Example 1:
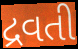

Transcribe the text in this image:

દ્રવતી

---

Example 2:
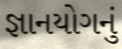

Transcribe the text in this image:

જ્ઞાનયોગનું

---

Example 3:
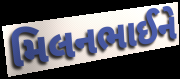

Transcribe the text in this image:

મિલનભાઈને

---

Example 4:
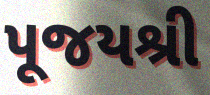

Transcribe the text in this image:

પૂજયશ્રી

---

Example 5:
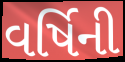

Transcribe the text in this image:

વર્ષિની